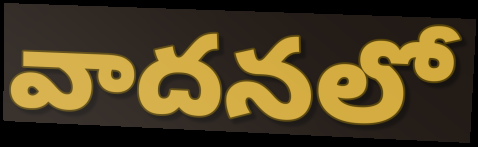
వాదనలో